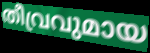
തീവ്രവുമായ